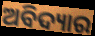
ଅବିଦ୍ୟାର